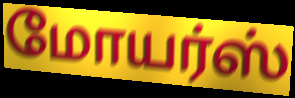
மோயர்ஸ்